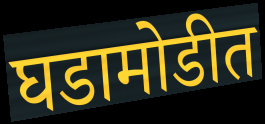
घडामोडीत